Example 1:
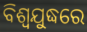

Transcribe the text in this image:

ବିଶ୍ବଯୁଦ୍ଧରେ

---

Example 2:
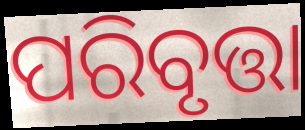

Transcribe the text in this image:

ପରିବୃତ୍ତା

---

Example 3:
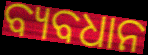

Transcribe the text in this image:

ବ୍ୟବଧାନ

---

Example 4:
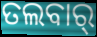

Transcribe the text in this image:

ତଲବାର୍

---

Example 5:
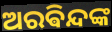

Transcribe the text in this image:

ଅରଵିନ୍ଦଙ୍କ